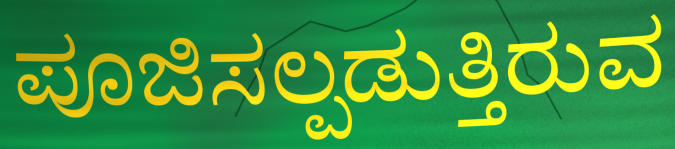
ಪೂಜಿಸಲ್ಪಡುತ್ತಿರುವ